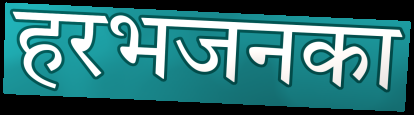
हरभजनका